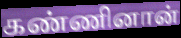
கண்ணினான்